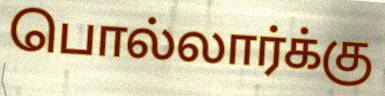
பொல்லார்க்கு